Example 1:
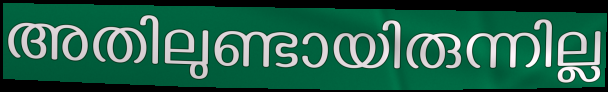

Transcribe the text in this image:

അതിലുണ്ടായിരുന്നില്ല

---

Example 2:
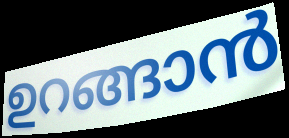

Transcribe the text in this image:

ഉറങ്ങാൻ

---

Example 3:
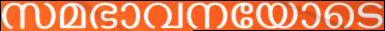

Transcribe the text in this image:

സമഭാവനയോടെ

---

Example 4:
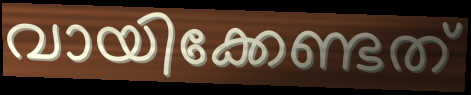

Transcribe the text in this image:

വായിക്കേണ്ടത്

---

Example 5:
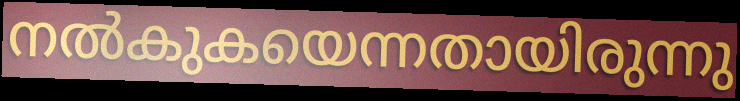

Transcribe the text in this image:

നൽകുകയെന്നതായിരുന്നു